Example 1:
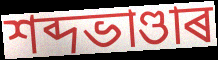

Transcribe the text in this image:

শব্দভাণ্ডাৰ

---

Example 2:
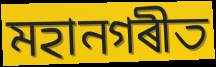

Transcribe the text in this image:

মহানগৰীত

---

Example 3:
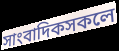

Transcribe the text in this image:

সাংবাদিকসকলে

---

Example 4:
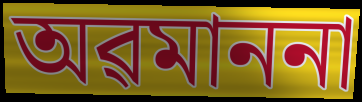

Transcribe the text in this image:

অৱমাননা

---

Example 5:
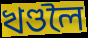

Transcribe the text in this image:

খণ্ডলৈ